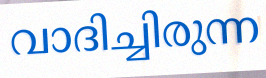
വാദിച്ചിരുന്ന